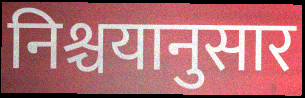
निश्चयानुसार